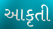
આકૃતી